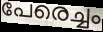
പേരെച്ചം